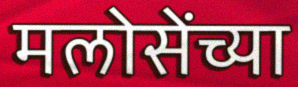
मलोसेंच्या